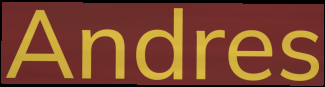
Andres